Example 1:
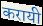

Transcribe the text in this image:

करायी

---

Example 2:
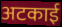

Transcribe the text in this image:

अटकाई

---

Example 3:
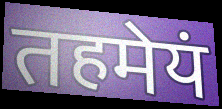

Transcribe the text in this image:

तहमेयं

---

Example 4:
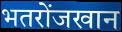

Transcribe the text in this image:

भतरोंजखान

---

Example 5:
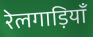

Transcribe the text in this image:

रेलगाड़ियाँ